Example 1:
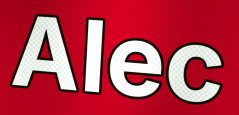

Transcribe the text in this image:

Alec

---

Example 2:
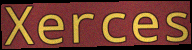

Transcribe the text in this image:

Xerces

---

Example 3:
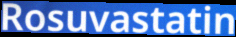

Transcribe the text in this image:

Rosuvastatin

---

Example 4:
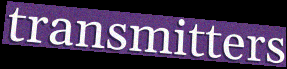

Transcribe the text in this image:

transmitters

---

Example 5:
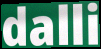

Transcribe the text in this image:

dalli